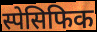
स्पेसिफिक